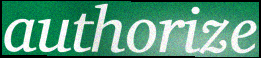
authorize